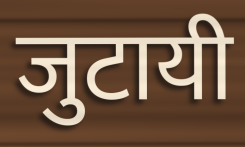
जुटायी